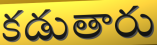
కడుతారు